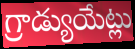
గ్రాడ్యుయేట్లు